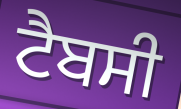
ਟੈਬਸੀ